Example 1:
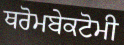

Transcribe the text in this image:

ਥਰੋਮਬੇਕਟੋਮੀ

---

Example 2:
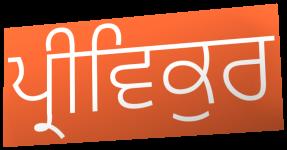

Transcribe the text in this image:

ਪ੍ਰੀਵਿਕੁਰ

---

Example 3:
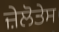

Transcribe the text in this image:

ਜ਼ੇਲੋਤੇਸ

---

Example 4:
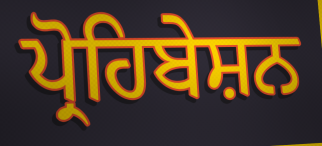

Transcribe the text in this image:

ਪ੍ਰੋਹਿਬੇਸ਼ਨ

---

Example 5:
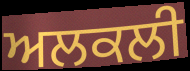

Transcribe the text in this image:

ਅਲਕਲੀ